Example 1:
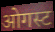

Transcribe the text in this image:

ओगस्ट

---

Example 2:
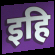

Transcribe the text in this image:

इहि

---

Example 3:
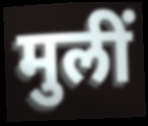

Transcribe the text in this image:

मुलीं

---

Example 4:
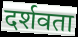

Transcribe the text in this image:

दर्शवता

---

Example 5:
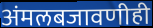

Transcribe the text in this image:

अंमलबजावणीही